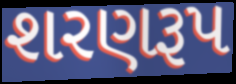
શરણરૂપ